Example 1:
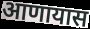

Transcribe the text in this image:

आणायास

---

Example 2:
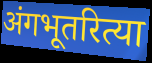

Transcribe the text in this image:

अंगभूतरित्या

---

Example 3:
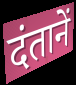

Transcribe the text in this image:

दंतानें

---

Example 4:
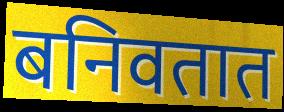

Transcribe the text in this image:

बनिवतात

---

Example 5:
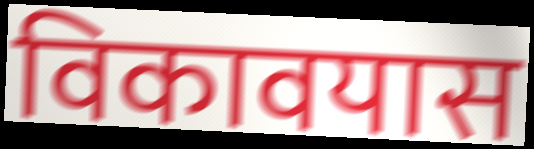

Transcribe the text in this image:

विकावयास